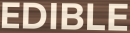
EDIBLE